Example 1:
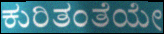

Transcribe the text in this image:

ಕುರಿತಂತೆಯೇ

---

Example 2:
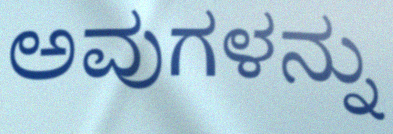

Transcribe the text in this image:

ಅವುಗಳನ್ನು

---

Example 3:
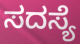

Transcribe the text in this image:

ಸದಸ್ಯೆ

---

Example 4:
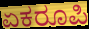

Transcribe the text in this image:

ಏಕರೂಪಿ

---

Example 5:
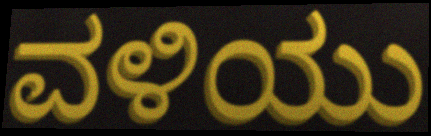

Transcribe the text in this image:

ವಳಿಯು